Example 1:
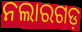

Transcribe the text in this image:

ନଲାରଗଡ଼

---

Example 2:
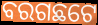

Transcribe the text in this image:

ବରଗଛଟେ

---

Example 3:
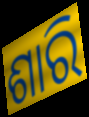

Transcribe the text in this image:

ଶାରି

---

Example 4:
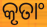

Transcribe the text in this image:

କୃତାଂ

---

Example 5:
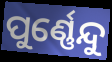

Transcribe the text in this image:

ପୁର୍ଣ୍ଣେନ୍ଦୁ